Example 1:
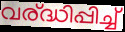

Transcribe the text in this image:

വര്ദ്ധിപ്പിച്ച്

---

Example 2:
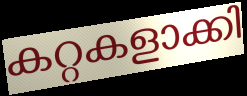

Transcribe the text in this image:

കറ്റകളാക്കി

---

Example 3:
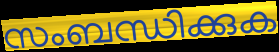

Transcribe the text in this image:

സംബന്ധിക്കുക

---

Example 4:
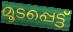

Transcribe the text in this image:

മൂടപ്പെട്ട്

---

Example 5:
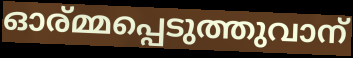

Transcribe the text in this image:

ഓര്മ്മപ്പെടുത്തുവാന്